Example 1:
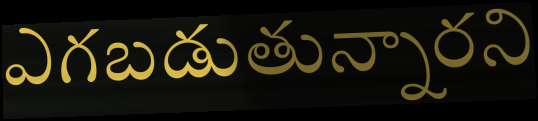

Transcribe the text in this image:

ఎగబడుతున్నారని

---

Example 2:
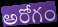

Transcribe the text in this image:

అరోగం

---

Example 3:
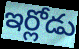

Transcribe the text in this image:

ఇర్లోడు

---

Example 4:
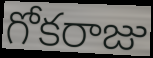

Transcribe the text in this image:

గోకరాజు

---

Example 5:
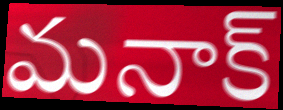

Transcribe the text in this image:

మనాక్